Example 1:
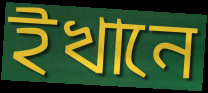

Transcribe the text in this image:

ইখানে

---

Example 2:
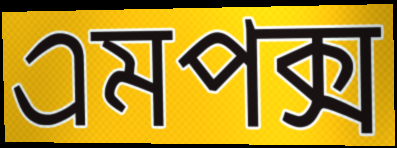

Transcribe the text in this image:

এমপক্স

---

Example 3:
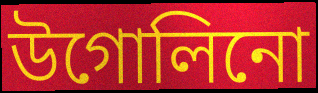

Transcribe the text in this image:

উগোলিনো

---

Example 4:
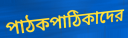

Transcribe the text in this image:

পাঠকপাঠিকাদের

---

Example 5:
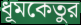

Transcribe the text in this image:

ধূমকেতুর